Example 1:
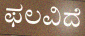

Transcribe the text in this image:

ಫಲವಿದೆ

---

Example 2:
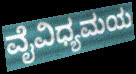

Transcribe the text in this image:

ವೈವಿಧ್ಯಮಯ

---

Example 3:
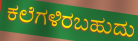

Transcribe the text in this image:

ಕಲೆಗಳಿರಬಹುದು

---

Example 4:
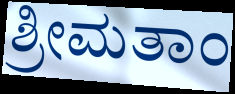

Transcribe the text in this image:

ಶ್ರೀಮತಾಂ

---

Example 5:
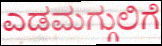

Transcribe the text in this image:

ಎಡಮಗ್ಗುಲಿಗೆ